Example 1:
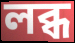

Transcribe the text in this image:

লব্ধ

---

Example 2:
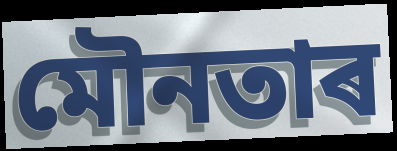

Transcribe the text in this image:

মৌনতাৰ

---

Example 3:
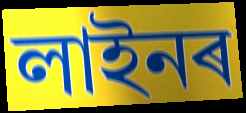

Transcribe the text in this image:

লাইনৰ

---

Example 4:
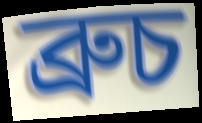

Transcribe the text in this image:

ব্ৰুচ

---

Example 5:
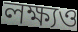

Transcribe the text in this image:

লক্ষ্যও